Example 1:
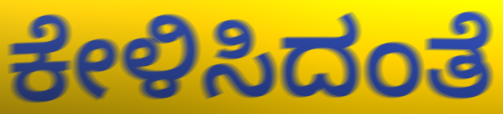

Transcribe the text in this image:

ಕೇಳಿಸಿದಂತೆ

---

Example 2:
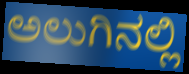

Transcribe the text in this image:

ಅಲುಗಿನಲ್ಲಿ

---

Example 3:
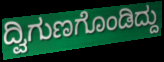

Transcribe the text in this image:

ದ್ವಿಗುಣಗೊಂಡಿದ್ದು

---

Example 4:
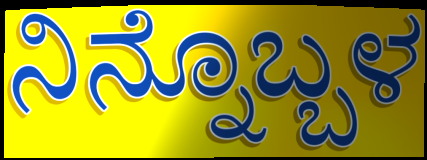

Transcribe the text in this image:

ನಿನ್ನೊಬ್ಬಳ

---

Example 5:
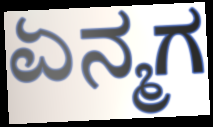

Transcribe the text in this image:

ಏನ್ಮಗ